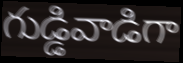
గుడ్డివాడిగా